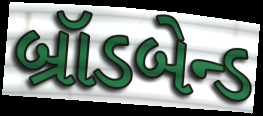
બ્રૉડબેન્ડ